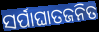
ସର୍ପାଘାତଜନିତ